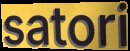
satori